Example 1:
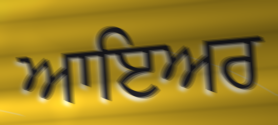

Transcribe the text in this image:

ਆਇਅਰ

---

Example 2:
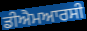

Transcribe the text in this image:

ਡੀਐਮਆਰਸੀ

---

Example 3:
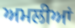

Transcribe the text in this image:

ਅਮਲੀਆਂ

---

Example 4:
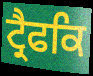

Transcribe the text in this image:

ਟ੍ਰੈਫਕਿ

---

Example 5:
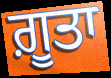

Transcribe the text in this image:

ਗ਼ੂਤਾ